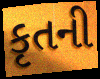
કૃતની